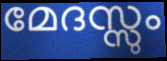
മേദസ്സും